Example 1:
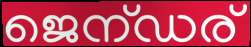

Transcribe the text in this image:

ജെന്ഡര്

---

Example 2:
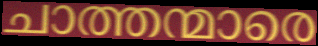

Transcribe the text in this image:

ചാത്തന്മാരെ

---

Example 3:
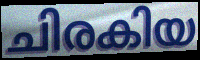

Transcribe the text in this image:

ചിരകിയ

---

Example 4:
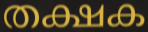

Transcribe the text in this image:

തക്ഷക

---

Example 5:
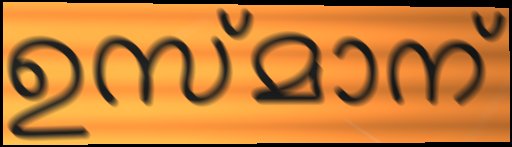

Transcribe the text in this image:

ഉസ്മാന്